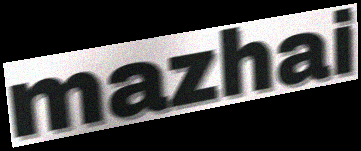
mazhai